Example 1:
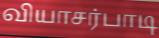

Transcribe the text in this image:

வியாசர்பாடி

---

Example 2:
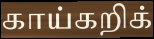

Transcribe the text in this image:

காய்கறிக்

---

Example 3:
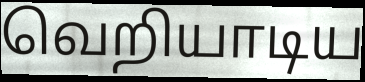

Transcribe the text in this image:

வெறியாடிய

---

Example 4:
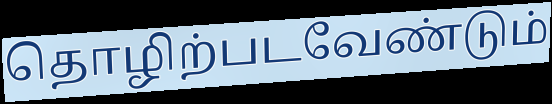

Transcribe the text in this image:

தொழிற்படவேண்டும்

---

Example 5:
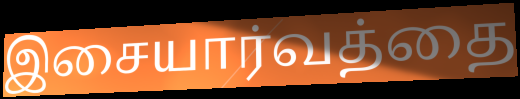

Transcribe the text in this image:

இசையார்வத்தை